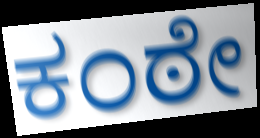
ಕಂಠೇ